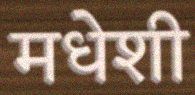
मधेशी